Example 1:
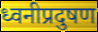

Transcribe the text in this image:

ध्वनीप्रदुषण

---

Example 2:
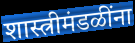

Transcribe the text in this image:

शास्त्रीमंडळींना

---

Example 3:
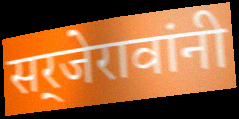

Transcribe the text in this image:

सर्जेरावांनी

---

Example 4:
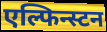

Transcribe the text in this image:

एल्फिन्स्टन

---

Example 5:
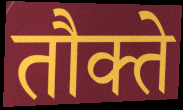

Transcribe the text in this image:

तौक्ते